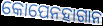
କୋପେନହାଗାନ